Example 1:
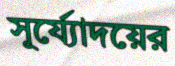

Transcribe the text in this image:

সূর্য্যোদয়ের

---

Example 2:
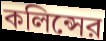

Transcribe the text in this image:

কলিন্সের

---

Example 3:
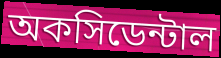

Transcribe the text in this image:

অকসিডেন্টাল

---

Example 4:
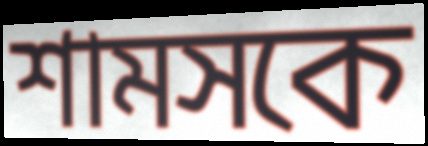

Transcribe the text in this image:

শামসকে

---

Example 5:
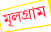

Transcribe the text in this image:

মূলগ্রাম